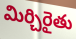
మిర్చిరైతు